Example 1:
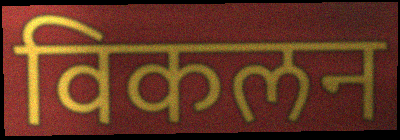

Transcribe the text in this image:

विकलन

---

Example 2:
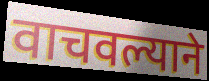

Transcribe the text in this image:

वाचवल्याने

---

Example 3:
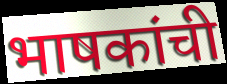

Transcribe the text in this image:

भाषकांची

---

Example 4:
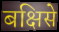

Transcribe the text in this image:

बक्षिसे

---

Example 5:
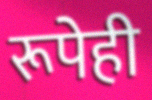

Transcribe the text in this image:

रूपेही